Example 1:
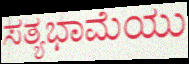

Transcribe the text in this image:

ಸತ್ಯಭಾಮೆಯು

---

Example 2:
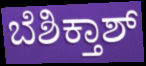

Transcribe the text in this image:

ಬೆಶಿಕ್ತಾಶ್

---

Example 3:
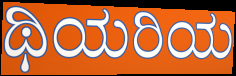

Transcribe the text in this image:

ಥಿಯರಿಯ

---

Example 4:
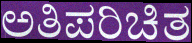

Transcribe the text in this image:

ಅತಿಪರಿಚಿತ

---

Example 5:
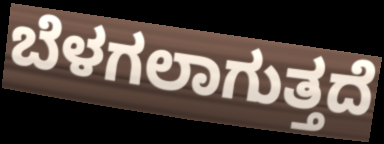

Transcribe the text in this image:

ಬೆಳಗಲಾಗುತ್ತದೆ